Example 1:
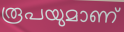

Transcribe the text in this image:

രൂപയുമാണ്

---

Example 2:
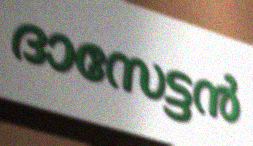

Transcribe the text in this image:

ദാസേട്ടൻ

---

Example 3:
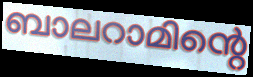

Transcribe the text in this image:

ബാലറാമിന്റെ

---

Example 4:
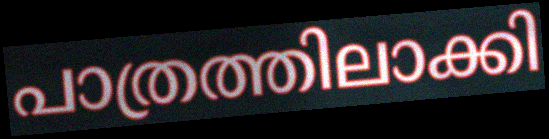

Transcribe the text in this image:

പാത്രത്തിലാക്കി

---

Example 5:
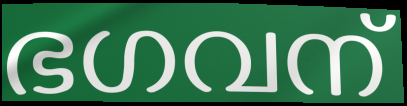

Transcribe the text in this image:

ഭഗവന്